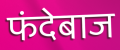
फंदेबाज